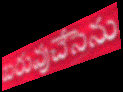
బరువుచేసెను